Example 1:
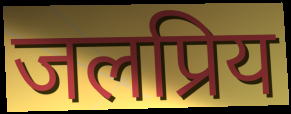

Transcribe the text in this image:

जलप्रिय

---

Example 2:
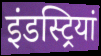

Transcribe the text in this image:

इंडस्ट्रियां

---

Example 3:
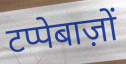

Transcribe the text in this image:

टप्पेबाज़ों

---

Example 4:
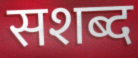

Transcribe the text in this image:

सशब्द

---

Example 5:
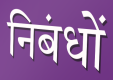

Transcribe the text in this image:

निबंधों